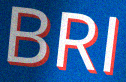
BRI